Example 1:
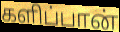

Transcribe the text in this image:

களிப்பான்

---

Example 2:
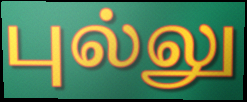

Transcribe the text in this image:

புல்லு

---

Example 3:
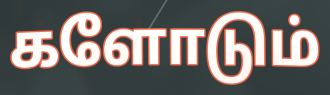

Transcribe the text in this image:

களோடும்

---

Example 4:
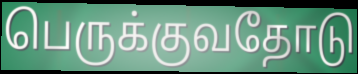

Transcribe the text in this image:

பெருக்குவதோடு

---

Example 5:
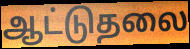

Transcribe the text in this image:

ஆட்டுதலை